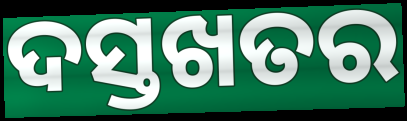
ଦସ୍ତଖତର